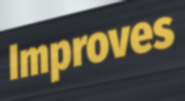
Improves